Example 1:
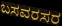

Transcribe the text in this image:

ಬಸವರಸರ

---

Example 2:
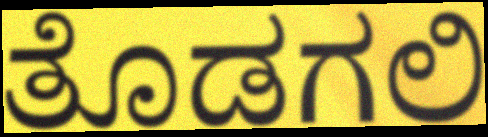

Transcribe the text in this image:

ತೊಡಗಲಿ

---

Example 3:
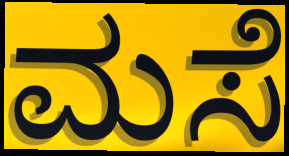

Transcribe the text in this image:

ಮಸೆ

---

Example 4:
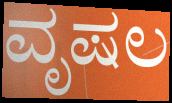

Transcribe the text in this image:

ವೃಷಲ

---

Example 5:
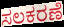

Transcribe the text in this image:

ಸಲಕರಣೆ